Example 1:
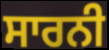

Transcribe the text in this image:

ਸਾਰਨੀ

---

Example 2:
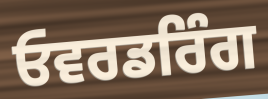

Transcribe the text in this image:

ਓਵਰਡਰਿੰਗ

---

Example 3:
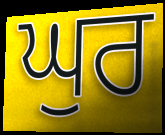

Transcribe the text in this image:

ਘੁਰ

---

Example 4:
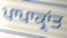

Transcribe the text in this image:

ਪਾਪਾਕ੍ਰਾਂਤ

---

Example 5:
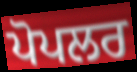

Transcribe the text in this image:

ਪੋਪਲਰ